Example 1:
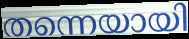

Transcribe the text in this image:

തന്നെയായി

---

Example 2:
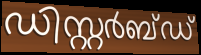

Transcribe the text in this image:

ഡിസ്റ്റർബ്ഡ്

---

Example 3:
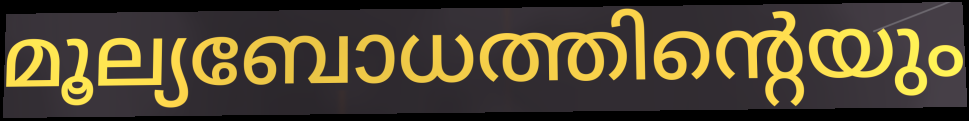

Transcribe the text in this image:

മൂല്യബോധത്തിന്റെയും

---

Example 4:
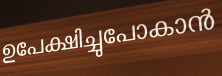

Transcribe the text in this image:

ഉപേക്ഷിച്ചുപോകാൻ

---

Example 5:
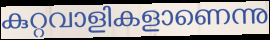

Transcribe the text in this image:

കുറ്റവാളികളാണെന്നു